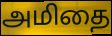
அமிதை